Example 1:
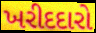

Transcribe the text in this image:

ખરીદદારો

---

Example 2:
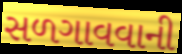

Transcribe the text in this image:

સળગાવવાની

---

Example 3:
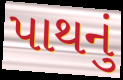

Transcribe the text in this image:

પાથનું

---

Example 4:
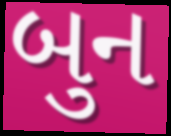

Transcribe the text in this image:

બુન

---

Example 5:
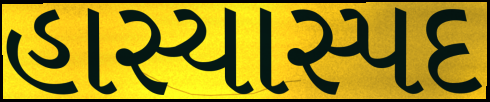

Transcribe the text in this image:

હાસ્યાસ્પદ